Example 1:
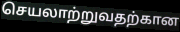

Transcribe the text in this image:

செயலாற்றுவதற்கான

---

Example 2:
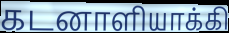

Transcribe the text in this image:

கடனாளியாக்கி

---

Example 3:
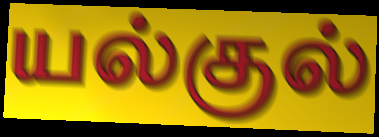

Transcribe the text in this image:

யல்குல்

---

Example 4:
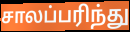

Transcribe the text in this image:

சாலப்பரிந்து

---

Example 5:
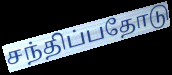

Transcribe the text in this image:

சந்திப்பதோடு